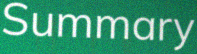
Summary